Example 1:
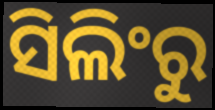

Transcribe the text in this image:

ସିଲିଂରୁ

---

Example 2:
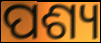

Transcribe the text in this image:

ପଶ୍ୟ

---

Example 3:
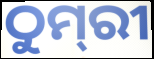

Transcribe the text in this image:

ଠୁମ୍‌ରୀ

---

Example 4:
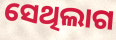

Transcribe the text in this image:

ସେଥିଲାଗ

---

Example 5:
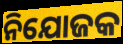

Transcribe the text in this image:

ନିଯୋଜକ